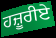
ਹਜ਼ੂਰੀਏ